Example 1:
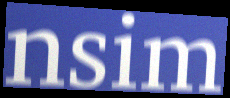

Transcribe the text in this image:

nsim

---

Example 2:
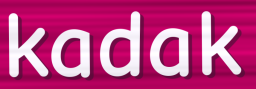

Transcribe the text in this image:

kadak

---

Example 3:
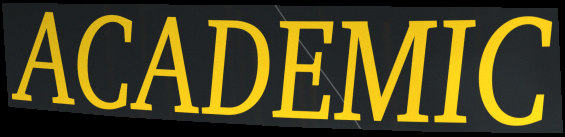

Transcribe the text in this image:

ACADEMIC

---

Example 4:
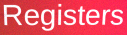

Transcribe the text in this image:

Registers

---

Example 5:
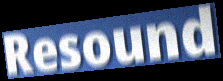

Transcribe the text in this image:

Resound